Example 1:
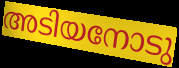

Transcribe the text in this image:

അടിയനോടു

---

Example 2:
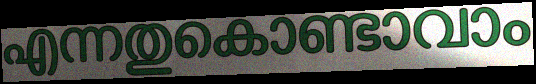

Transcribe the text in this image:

എന്നതുകൊണ്ടാവാം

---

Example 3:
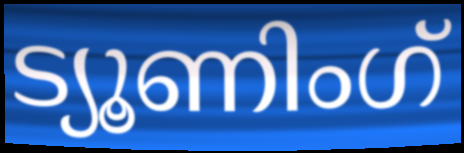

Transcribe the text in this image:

ട്യൂണിംഗ്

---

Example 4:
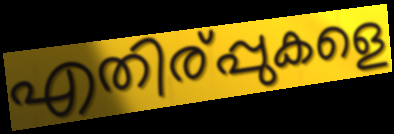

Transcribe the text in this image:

എതിര്പ്പുകളെ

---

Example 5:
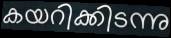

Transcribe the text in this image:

കയറിക്കിടന്നു